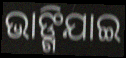
ଭାଙ୍ଗିଯାଇ